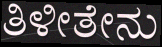
ತಿಳೀತೇನು